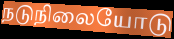
நடுநிலையோடு